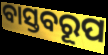
ବାସ୍ତବରୂପ